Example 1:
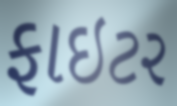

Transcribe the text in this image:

ફાઇટર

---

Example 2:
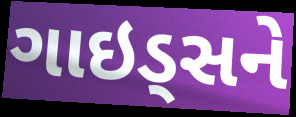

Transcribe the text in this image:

ગાઇડ્સને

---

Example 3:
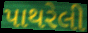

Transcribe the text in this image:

પાથરેલી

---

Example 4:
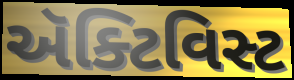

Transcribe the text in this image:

ઍક્ટિવિસ્ટ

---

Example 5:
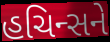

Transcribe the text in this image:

હચિન્સને